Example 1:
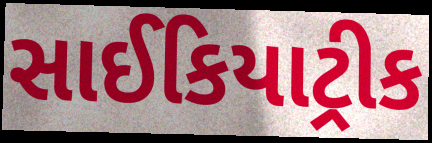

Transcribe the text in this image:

સાઈકિયાટ્રીક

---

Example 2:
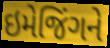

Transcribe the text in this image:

ઇમેજિંગને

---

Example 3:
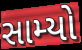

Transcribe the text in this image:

સામ્યો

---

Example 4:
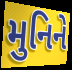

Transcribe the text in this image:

મુનિને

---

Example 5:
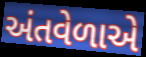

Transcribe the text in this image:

અંતવેળાએ